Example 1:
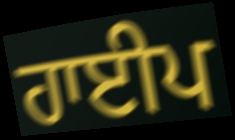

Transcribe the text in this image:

ਹਾਈਪ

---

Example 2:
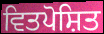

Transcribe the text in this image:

ਵਿਤਪੋਸ਼ਿਤ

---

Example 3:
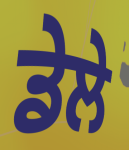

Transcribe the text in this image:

ਡੇਲੇ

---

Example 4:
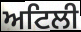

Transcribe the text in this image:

ਅਟਿਲੀ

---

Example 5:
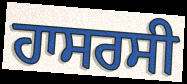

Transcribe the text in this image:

ਹਾਸਰਸੀ